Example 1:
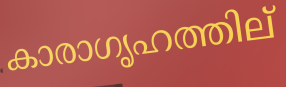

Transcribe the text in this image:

കാരാഗൃഹത്തില്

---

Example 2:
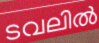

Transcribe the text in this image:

ടവലിൽ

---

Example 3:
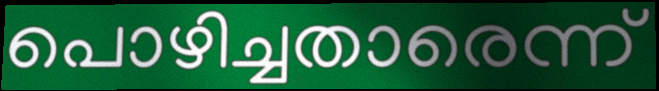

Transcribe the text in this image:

പൊഴിച്ചതാരെന്ന്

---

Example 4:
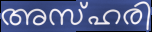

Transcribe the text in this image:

അസ്ഹരി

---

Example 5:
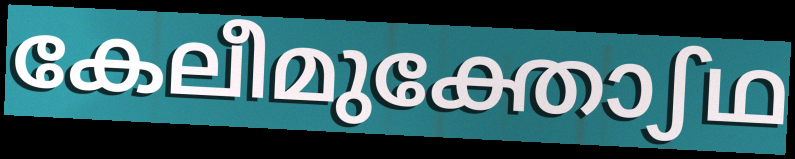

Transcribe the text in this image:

കേലീമുക്തോഽഥ